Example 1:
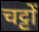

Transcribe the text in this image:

चट्टों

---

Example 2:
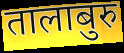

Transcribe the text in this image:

तालाबुरु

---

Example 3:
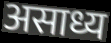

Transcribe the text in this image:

असाध्य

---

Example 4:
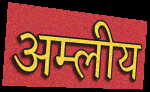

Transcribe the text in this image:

अम्लीय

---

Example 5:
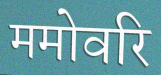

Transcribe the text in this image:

ममोवरि